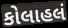
કોલાહલં